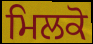
ਮਿਲਕੋ